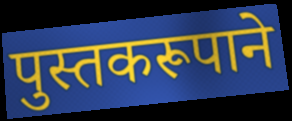
पुस्तकरूपाने